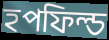
হপফিল্ড